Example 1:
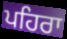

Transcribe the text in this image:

ਪਹਿਰਾ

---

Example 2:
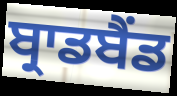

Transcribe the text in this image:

ਬ੍ਰਾਡਬੈਂਡ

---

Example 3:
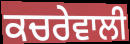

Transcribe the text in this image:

ਕਚਰੇਵਾਲੀ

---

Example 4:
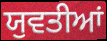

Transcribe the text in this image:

ਯੁਵਤੀਆਂ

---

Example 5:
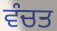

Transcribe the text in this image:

ਵੰਚਤ